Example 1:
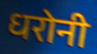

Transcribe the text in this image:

धरोनी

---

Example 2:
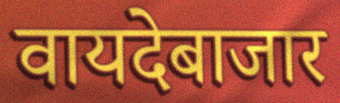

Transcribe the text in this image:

वायदेबाजार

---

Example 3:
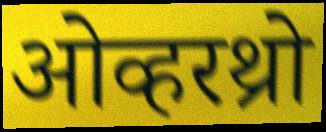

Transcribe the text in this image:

ओव्हरथ्रो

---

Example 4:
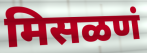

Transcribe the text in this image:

मिसळणं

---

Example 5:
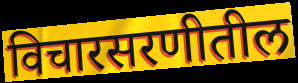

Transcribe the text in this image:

विचारसरणीतील